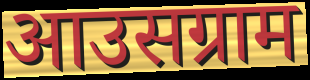
आउसग्राम